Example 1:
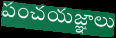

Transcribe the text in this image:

పంచయజ్ఞాలు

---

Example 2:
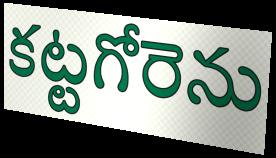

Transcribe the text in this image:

కట్టగోరెను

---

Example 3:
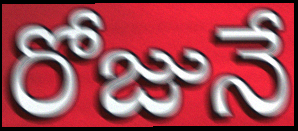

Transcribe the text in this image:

రోజునే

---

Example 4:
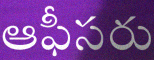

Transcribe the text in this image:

ఆఫీసరు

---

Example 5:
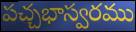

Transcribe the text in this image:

పచ్చభాస్వరము